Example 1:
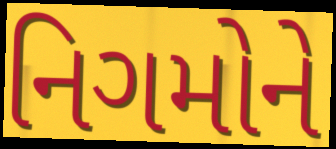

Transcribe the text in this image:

નિગમોને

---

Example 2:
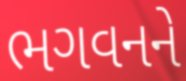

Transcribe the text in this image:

ભગવનને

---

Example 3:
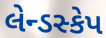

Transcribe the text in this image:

લેન્ડસ્કેપ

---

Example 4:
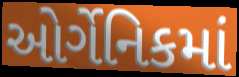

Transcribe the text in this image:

ઓર્ગેનિકમાં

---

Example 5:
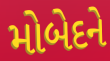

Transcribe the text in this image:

મોબેદને